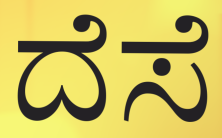
ದೆಸೆ